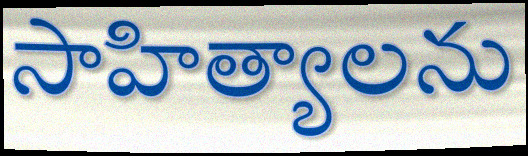
సాహిత్యాలను